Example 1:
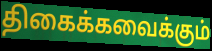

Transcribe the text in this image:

திகைக்கவைக்கும்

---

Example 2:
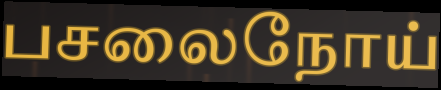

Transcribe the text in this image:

பசலைநோய்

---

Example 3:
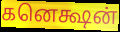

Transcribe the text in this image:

கனெக்ஷன்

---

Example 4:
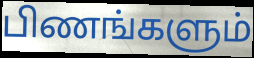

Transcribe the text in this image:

பிணங்களும்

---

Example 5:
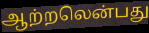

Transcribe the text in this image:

ஆற்றலென்பது